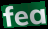
fea